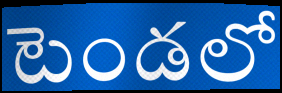
టెండలో